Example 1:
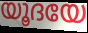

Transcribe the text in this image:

യൂദയേ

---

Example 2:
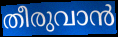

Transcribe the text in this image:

തീരുവാൻ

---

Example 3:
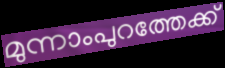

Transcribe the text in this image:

മുന്നാംപുറത്തേക്ക്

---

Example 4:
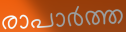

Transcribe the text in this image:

രാപാർത്ത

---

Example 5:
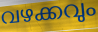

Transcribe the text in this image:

വഴക്കവും